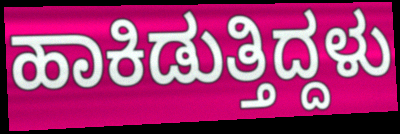
ಹಾಕಿಡುತ್ತಿದ್ದಳು